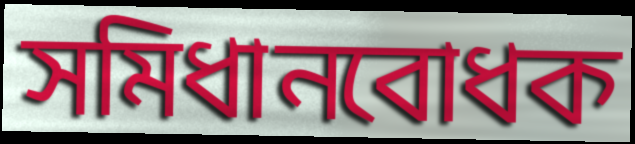
সমিধানবোধক